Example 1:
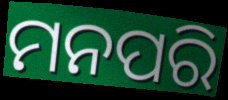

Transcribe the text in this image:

ମନପରି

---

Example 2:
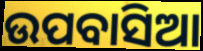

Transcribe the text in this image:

ଉପବାସିଆ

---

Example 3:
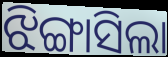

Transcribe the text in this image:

ଝିଙ୍ଗାସିଲା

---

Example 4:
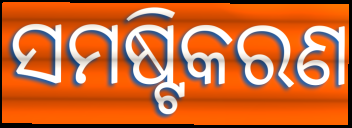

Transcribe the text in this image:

ସମଷ୍ଟିକରଣ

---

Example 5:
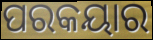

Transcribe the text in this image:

ପରକୟାର